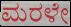
ಮರಳೇ